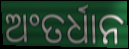
ଅଂତର୍ଧାନ